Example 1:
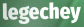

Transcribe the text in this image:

legechey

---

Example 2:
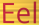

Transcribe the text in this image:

Eel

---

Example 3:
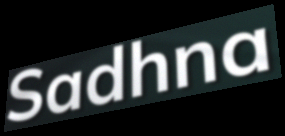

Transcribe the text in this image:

Sadhna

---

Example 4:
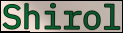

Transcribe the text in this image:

Shirol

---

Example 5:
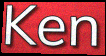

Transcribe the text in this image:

Ken